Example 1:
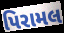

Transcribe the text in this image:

પિરામલ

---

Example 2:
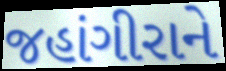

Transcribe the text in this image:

જહાંગીરાને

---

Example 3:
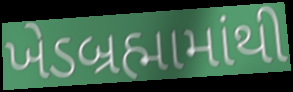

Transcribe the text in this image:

ખેડબ્રહ્મામાંથી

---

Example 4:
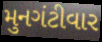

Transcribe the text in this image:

મુનગંટીવાર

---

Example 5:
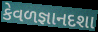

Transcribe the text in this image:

કેવળજ્ઞાનદશા